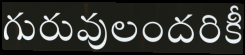
గురువులందరికీ